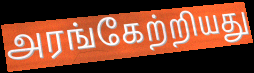
அரங்கேற்றியது